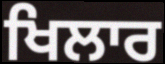
ਖਿਲਾਰ